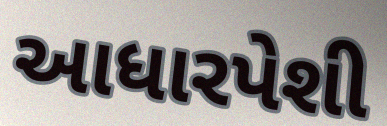
આધારપેશી